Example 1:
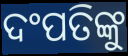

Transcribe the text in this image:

ଦଂପତିଙ୍କୁ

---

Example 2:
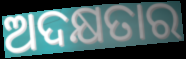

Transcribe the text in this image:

ଅଦକ୍ଷତାର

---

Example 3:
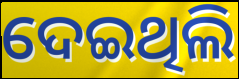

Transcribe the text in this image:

ଦେଇଥିଲି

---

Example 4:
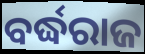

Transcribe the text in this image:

ବର୍ଦ୍ଧରାଜ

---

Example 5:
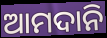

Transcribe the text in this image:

ଆମଦାନି